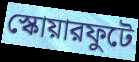
স্কোয়ারফুটে